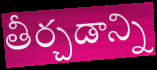
తీర్చడాన్ని